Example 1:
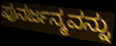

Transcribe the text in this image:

ಪುನರ್ಜನ್ಮವನ್ನು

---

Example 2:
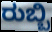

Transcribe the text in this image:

ರುಬ್ಬಿ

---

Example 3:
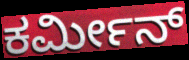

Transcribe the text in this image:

ಕರ್ಮೀನ್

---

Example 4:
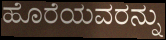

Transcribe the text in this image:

ಹೊರೆಯವರನ್ನು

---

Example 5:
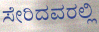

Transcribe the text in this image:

ಸೇರಿದವರಲ್ಲಿ